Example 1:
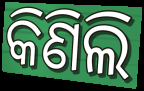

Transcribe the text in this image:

କିଣିଲି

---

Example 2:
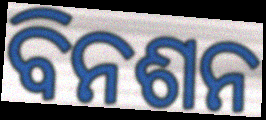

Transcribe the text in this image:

ବିନଶନ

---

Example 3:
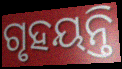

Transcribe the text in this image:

ଗୃହୟନ୍ତି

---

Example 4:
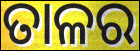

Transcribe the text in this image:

ତାଳର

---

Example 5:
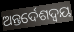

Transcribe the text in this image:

ଅନ୍ତର୍ଦେଶଦ୍ଵୟ